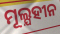
ମୂଲ୍ଯହୀନ